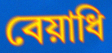
বেয়াধি